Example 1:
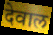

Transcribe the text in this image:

देवाल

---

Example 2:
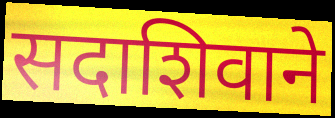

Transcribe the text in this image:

सदाशिवाने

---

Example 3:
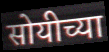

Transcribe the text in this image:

सोयीच्या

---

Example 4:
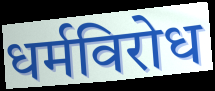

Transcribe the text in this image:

धर्मविरोध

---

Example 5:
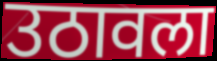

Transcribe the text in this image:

उठावला